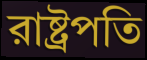
রাষ্ট্রপতি